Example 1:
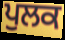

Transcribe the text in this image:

ਪੁਲਕ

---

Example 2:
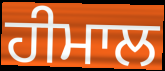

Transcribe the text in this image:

ਹੀਮਾਲ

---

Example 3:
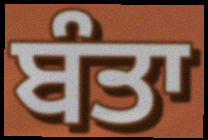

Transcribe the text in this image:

ਬੰਤਾ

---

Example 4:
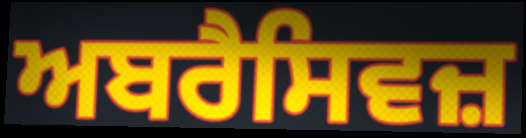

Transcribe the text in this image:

ਅਬਰੈਸਿਵਜ਼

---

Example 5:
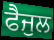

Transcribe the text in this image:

ਫੈਜੁਲ